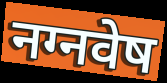
नग्नवेष